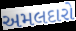
અમલદારો